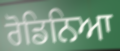
ਰੋਡਿਨਿਆ